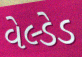
વેલ્ડેડ